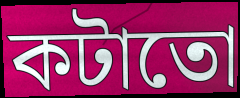
কটাতো